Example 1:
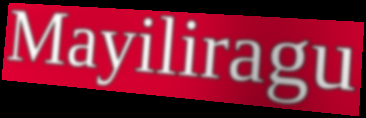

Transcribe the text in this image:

Mayiliragu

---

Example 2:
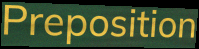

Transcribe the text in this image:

Preposition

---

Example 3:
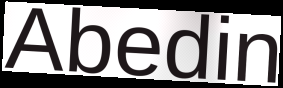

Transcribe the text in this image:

Abedin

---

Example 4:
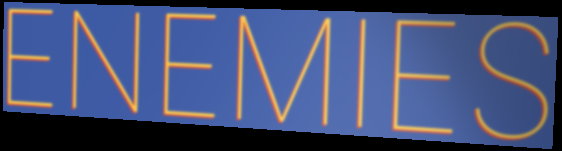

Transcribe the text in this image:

ENEMIES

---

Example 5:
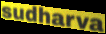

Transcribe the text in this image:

sudharva